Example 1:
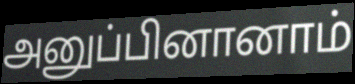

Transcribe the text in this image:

அனுப்பினானாம்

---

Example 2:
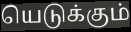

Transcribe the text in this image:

யெடுக்கும்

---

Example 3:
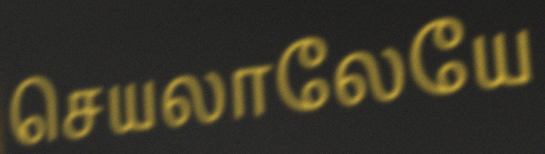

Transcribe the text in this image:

செயலாலேயே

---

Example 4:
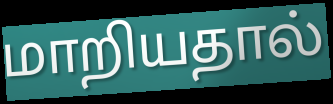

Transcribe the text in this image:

மாறியதால்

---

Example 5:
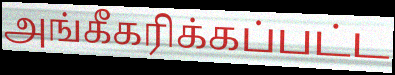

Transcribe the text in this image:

அங்கீகரிக்கப்பட்ட